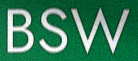
BSW